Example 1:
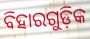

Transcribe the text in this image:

ବିହାରଗୁଡ଼ିକ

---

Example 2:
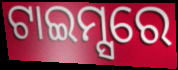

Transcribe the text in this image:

ଟାଇମ୍ସରେ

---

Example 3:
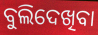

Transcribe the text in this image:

ବୁଲିଦେଖିବା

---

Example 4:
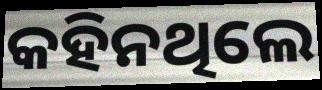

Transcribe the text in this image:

କହିନଥିଲେ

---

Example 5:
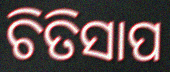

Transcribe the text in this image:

ଚିତିସାପ